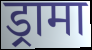
ड्रामा